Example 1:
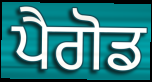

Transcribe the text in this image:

ਪੈਗੋਡ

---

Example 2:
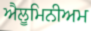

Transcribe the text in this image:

ਐਲੂਮਿਨੀਅਮ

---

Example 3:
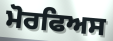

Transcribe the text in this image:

ਮੋਰਫਿਅਸ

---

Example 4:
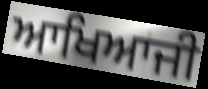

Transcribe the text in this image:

ਆਖਿਆਜੀ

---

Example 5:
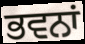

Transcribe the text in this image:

ਭਵਨਾਂ